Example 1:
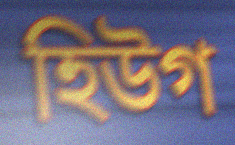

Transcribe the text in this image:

হিউগ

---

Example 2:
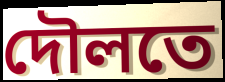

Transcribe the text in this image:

দৌলতে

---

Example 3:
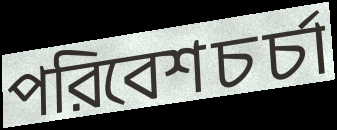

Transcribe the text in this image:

পরিবেশচর্চা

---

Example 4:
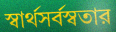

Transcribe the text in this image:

স্বার্থসর্বস্বতার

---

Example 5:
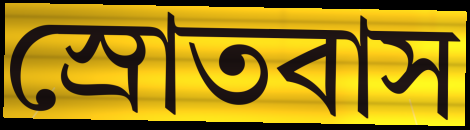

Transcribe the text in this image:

স্রোতবাস